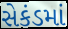
સેકંડમાં